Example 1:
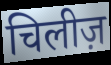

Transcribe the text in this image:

चिलीज़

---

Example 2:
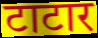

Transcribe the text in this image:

टाटार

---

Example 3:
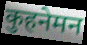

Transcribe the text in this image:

कुहनेमन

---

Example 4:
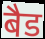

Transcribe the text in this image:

बैड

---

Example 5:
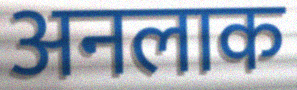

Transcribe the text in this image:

अनलाक